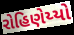
રોહિણેય્યો